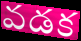
వడక